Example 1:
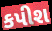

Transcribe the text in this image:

કપીશ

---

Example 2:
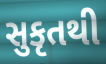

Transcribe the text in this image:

સુકૃતથી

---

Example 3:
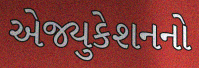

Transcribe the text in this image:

એજ્યુકેશનનો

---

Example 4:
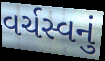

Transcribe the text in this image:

વર્ચસ્વનું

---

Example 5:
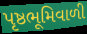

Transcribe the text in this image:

પૃષ્ઠભૂમિવાળી